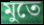
মুতে